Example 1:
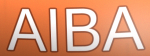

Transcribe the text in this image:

AIBA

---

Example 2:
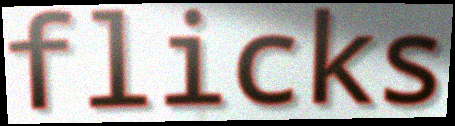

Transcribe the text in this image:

flicks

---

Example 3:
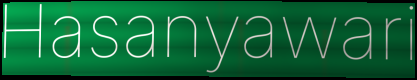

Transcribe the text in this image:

Hasanyawari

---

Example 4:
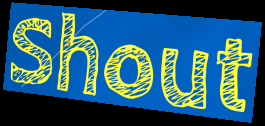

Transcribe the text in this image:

Shout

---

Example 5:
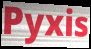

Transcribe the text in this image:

Pyxis